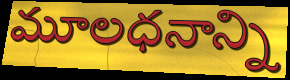
మూలధనాన్ని